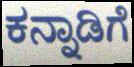
ಕನ್ನಾಡಿಗೆ